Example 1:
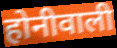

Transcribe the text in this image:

होनीवाली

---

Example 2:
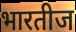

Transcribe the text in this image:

भारतीज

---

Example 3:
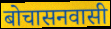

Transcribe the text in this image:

बोचासनवासी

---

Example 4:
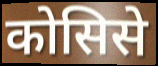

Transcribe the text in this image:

कोसिसे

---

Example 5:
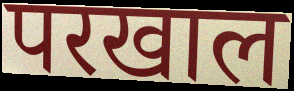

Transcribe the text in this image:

परखाल